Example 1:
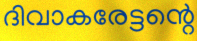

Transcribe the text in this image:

ദിവാകരേട്ടന്റെ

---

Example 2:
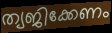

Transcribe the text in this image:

ത്യജിക്കേണം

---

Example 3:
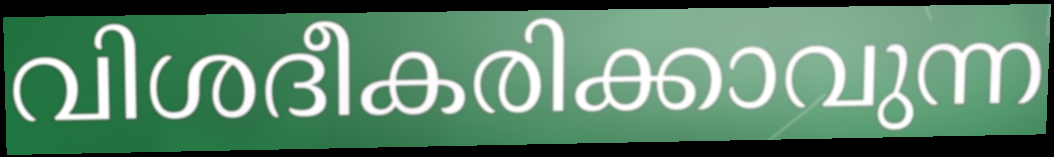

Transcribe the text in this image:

വിശദീകരിക്കാവുന്ന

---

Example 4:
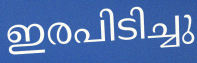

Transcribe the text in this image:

ഇരപിടിച്ചു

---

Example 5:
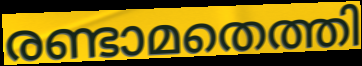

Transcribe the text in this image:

രണ്ടാമതെത്തി